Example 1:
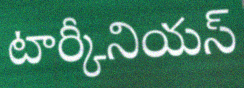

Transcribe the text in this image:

టార్కీనియస్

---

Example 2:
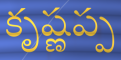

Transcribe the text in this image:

కృష్ణప్ప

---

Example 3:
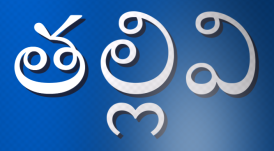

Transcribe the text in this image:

తల్లివి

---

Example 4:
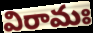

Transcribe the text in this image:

విరామః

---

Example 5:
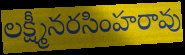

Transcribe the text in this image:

లక్ష్మీనరసింహరావు